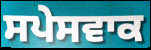
ਸਪੇਸਵਾਕ